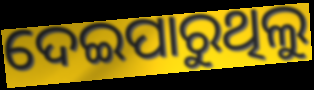
ଦେଇପାରୁଥିଲୁ